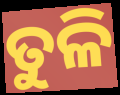
ତୁଳି